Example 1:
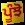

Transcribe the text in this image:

ਪੂੰਝੋ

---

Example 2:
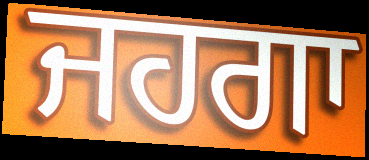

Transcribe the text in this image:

ਜਹਗਾ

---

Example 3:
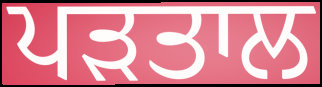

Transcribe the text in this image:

ਪੜਤਾਲ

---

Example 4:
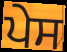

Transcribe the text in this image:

ਪੇਸ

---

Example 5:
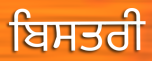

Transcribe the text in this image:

ਬਿਸਤਰੀ